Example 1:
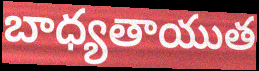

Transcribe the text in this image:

బాధ్యతాయుత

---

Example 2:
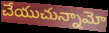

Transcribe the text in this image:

చేయుచున్నామో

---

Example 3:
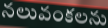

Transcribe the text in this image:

నలువంకలను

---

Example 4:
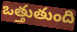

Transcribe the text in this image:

ఒత్తుతుంది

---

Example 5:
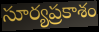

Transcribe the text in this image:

సూర్యప్రకాశం